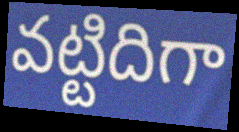
వట్టిదిగా